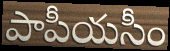
పాపీయసీం